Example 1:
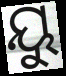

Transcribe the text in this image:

ୟୁ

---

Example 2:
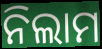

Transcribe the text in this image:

ନିଲାମ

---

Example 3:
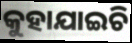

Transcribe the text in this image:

କୁହାଯାଇଚି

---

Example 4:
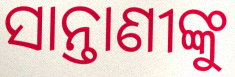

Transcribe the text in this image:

ସାନ୍ତାଣୀଙ୍କୁ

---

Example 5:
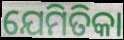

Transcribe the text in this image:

ଯେମିତିକା